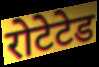
रोटेटेड